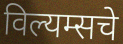
विल्यम्सचे